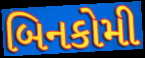
બિનકોમી